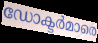
ഡോക്ടർമാരെ